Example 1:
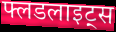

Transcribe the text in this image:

फ्लडलाइट्स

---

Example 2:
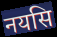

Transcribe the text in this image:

नयसि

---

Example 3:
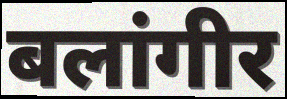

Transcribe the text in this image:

बलांगीर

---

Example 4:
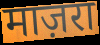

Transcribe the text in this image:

माज़रा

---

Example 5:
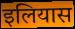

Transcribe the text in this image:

इलियास